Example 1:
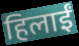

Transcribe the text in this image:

हिलाईं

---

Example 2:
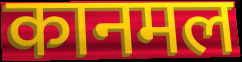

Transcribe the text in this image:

कानमल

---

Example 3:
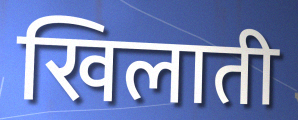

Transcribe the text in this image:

खिलाती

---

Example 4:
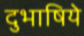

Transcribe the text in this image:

दुभाषिये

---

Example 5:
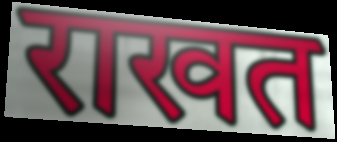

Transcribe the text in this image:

राखत